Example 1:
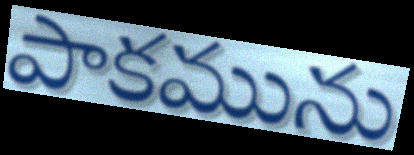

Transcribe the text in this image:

పాకమును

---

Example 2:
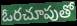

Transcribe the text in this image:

ఓరచూపుతో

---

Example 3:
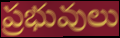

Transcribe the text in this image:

ప్రభువులు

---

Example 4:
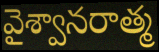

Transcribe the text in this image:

వైశ్వానరాత్మ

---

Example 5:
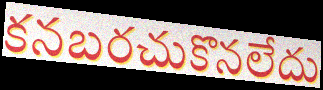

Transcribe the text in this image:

కనబరచుకొనలేదు